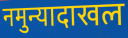
नमुन्यादाखल